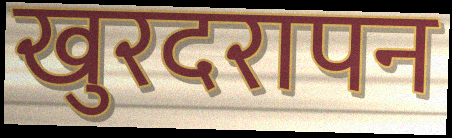
खुरदरापन